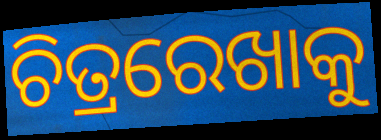
ଚିତ୍ରରେଖାକୁ